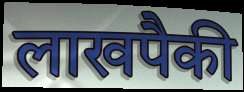
लाखपैकी